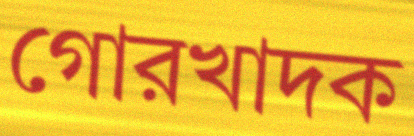
গোরখাদক